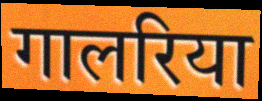
गालरिया